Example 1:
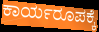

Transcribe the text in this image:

ಕಾರ್ಯರೂಪಕ್ಕೆ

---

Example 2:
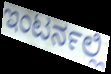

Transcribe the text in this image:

ಇಂಟರ್ನಲ್ಲಿ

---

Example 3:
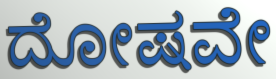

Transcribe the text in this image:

ದೋಷವೇ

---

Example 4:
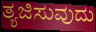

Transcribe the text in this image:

ತ್ಯಜಿಸುವುದು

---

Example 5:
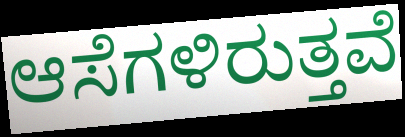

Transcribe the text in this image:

ಆಸೆಗಳಿರುತ್ತವೆ